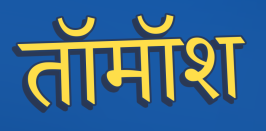
तॉमॉश